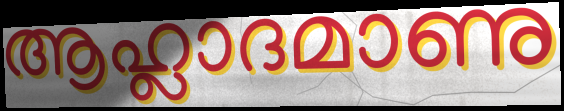
ആഹ്ലാദമാണു